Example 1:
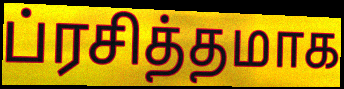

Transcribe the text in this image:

ப்ரசித்தமாக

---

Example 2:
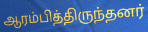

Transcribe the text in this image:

ஆரம்பித்திருந்தனர்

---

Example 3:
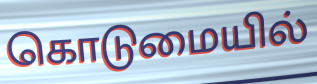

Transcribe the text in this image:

கொடுமையில்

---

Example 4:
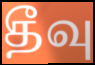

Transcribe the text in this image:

தீவு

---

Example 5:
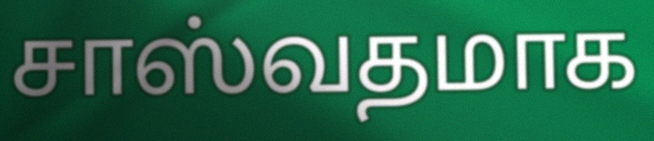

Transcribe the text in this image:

சாஸ்வதமாக